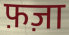
फ़ज़ा